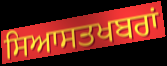
ਸਿਆਸਤਖਬਰਾਂ